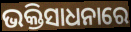
ଭକ୍ତିସାଧନାରେ